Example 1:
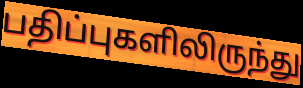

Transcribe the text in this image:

பதிப்புகளிலிருந்து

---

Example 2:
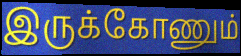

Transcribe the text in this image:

இருக்கோணும்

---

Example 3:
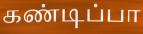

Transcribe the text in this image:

கண்டிப்பா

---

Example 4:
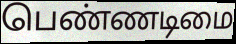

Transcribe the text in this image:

பெண்ணடிமை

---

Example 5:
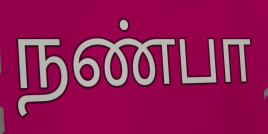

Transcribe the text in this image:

நண்பா